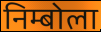
निम्बोला